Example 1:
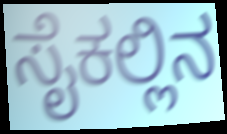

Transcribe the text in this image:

ಸೈಕಲ್ಲಿನ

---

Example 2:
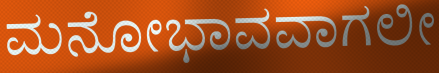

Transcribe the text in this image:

ಮನೋಭಾವವಾಗಲೀ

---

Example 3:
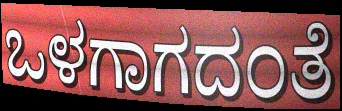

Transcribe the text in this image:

ಒಳಗಾಗದಂತೆ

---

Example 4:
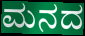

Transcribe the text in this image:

ಮನದ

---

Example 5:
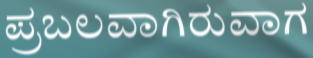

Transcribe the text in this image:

ಪ್ರಬಲವಾಗಿರುವಾಗ